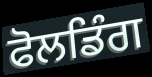
ਫੋਲਡਿੰਗ